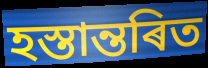
হস্তান্তৰিত